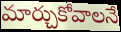
మార్చుకోవాలనే